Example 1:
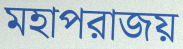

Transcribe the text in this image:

মহাপরাজয়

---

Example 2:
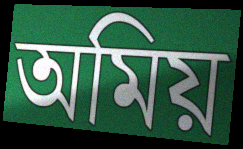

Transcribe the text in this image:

অমিয়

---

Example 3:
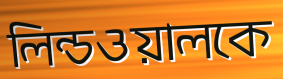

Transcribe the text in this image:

লিন্ডওয়ালকে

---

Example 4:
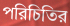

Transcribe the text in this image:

পরিচিতির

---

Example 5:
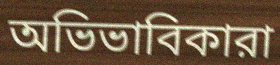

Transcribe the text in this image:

অভিভাবিকারা